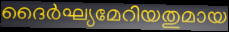
ദൈർഘ്യമേറിയതുമായ